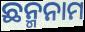
ଛନ୍ମନାମ